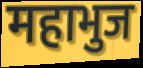
महाभुज